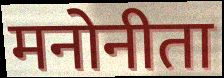
मनोनीता